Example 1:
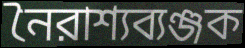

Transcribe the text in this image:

নৈরাশ্যব্যঞ্জক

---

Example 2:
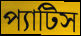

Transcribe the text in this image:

প্যাটিস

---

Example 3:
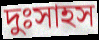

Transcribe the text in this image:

দুঃসাহস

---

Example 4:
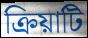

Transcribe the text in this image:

ক্রিয়াটি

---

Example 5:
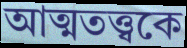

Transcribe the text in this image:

আত্মতত্ত্বকে